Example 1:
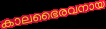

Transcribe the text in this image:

കാലഭൈരവനായ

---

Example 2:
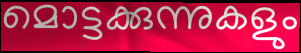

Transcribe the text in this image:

മൊട്ടക്കുന്നുകളും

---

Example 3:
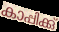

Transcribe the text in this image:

കാപ്പിക്കു്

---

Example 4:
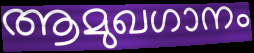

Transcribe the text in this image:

ആമുഖഗാനം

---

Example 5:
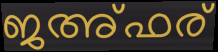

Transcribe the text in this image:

ജഅ്ഫര്